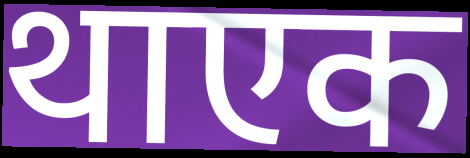
थाएक